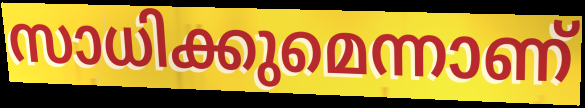
സാധിക്കുമെന്നാണ്